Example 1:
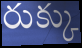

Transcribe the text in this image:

రుక్కు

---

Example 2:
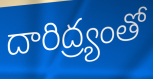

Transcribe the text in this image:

దారిద్ర్యంతో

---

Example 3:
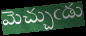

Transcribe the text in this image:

మెచ్చుఁడు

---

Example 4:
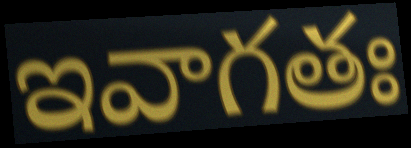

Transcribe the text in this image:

ఇవాగతః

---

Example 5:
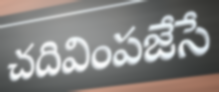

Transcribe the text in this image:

చదివింపజేసే